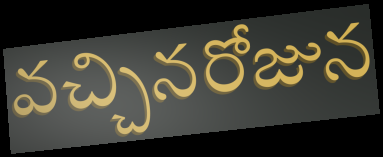
వచ్చినరోజున